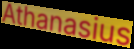
Athanasius